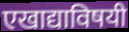
एखाद्याविषयी